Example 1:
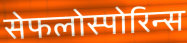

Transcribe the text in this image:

सेफलोस्पोरिन्स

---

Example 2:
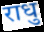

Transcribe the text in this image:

राधु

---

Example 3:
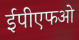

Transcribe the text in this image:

ईपीएफओ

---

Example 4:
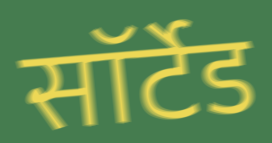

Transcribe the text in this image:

सॉर्टेड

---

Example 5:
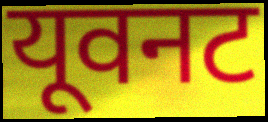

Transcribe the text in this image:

यूवनट